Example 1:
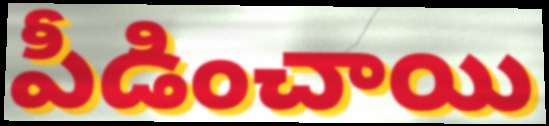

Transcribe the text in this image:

పీడించాయి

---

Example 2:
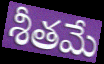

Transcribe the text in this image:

శీతమే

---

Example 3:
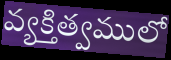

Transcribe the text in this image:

వ్యక్తిత్వములో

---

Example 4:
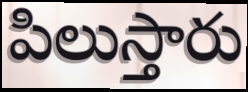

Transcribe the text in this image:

పిలుస్తారు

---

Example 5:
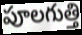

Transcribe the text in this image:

పూలగుత్తి